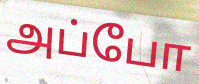
அப்போ